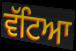
ਵੱਟਿਆ